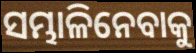
ସମ୍ଭାଳିନେବାକୁ